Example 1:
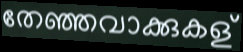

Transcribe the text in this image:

തേഞ്ഞവാക്കുകള്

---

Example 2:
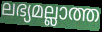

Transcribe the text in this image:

ലഭ്യമല്ലാത്ത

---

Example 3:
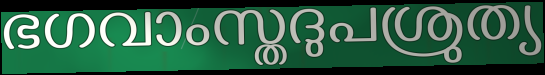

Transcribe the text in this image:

ഭഗവാംസ്തദുപശ്രുത്യ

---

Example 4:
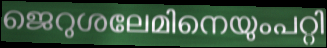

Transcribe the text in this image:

ജെറുശലേമിനെയുംപറ്റി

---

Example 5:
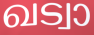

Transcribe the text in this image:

ഖട്വാ